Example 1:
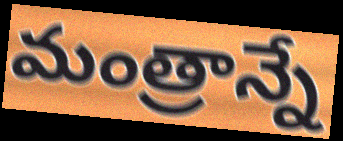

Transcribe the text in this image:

మంత్రాన్నే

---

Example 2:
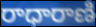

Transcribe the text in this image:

రాధారాణి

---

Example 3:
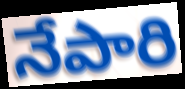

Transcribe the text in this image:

నేపారి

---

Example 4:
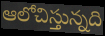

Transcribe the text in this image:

ఆలోచిస్తున్నది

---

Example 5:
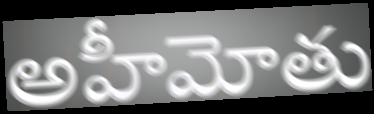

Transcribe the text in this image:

అహీమోతు